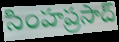
సింహప్రసాద్